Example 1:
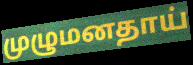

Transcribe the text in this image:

முழுமனதாய்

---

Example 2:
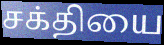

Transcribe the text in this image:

சக்தியை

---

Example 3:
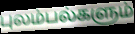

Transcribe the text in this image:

புலம்பல்களும்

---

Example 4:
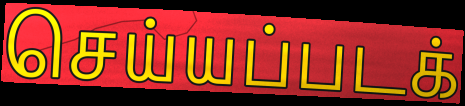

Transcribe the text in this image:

செய்யப்படக்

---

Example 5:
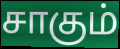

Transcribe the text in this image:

சாகும்